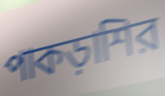
পাকড়াশির